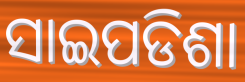
ସାଇପଡିଶା